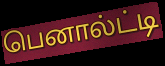
பெனால்ட்டி